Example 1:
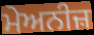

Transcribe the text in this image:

ਮੇਅਨੀਜ਼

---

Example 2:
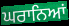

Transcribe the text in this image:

ਘਰਾਨਿਆਂ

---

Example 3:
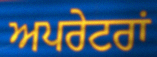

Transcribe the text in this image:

ਅਪਰੇਟਰਾਂ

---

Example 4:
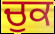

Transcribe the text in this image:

ਚੁਕ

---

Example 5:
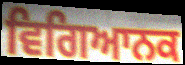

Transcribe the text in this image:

ਵਿਗਿਆਨਕ